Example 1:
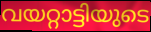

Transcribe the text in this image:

വയറ്റാട്ടിയുടെ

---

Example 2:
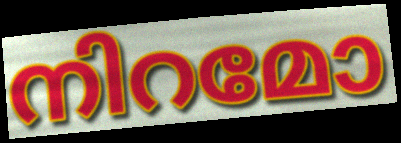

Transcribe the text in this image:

നിറമോ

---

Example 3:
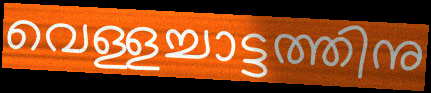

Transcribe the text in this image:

വെള്ളച്ചാട്ടത്തിനു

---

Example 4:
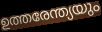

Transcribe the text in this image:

ഉത്തരേന്ത്യയും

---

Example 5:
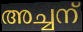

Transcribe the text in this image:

അച്ചന്